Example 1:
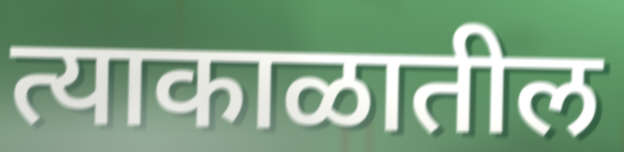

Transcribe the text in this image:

त्याकाळातील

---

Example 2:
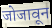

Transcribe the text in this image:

जोजावून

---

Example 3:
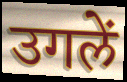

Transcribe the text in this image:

उगलें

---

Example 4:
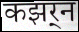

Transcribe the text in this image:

कझर्न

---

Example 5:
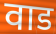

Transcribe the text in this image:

वाड